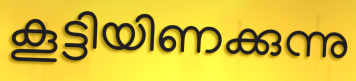
കൂട്ടിയിണക്കുന്നു